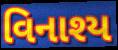
વિનાશ્ય